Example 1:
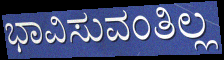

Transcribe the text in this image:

ಭಾವಿಸುವಂತಿಲ್ಲ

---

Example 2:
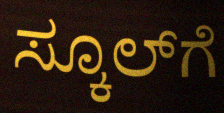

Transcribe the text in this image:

ಸ್ಕೂಲ್‌ಗೆ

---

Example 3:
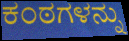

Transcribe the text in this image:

ಕಂಠಗಳನ್ನು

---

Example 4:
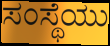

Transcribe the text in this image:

ಸಂಸ್ಥೆಯು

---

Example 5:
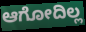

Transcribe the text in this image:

ಆಗೋದಿಲ್ಲ